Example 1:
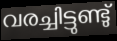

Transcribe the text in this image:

വരച്ചിട്ടുണ്ടു്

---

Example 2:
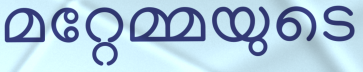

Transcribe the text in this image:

മറ്റേമ്മയുടെ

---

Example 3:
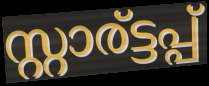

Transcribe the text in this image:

സ്റ്റാര്ട്ടപ്പ്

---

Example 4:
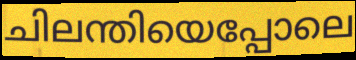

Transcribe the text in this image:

ചിലന്തിയെപ്പോലെ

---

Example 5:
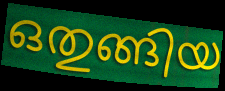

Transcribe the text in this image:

ഒതുങ്ങിയ